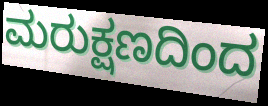
ಮರುಕ್ಷಣದಿಂದ